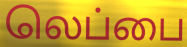
லெப்பை